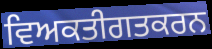
ਵਿਅਕਤੀਗਤਕਰਨ